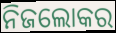
ନିଜଲୋକର